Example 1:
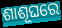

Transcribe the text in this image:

ଶାଶୂଘରେ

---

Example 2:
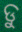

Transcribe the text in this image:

ଡୁ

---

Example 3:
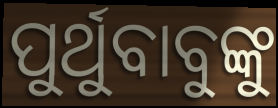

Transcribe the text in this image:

ପୁର୍ଥୁବାବୁଙ୍କୁ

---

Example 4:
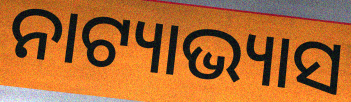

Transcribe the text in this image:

ନାଟ୍ୟାଭ୍ୟାସ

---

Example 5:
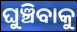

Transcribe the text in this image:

ଘୁଞ୍ଚିବାକୁ